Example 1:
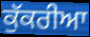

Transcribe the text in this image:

ਕੁੱਕਰੀਆ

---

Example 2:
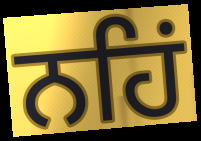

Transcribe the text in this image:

ਨਹਿਂ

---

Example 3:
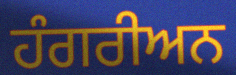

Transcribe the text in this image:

ਹੰਗਰੀਅਨ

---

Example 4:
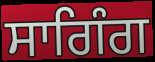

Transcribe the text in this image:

ਸਾਗਿੰਗ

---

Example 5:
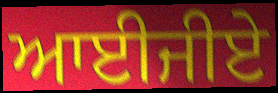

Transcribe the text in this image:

ਆਈਜੀਏ